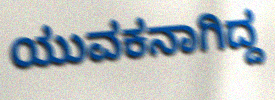
ಯುವಕನಾಗಿದ್ದ